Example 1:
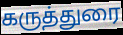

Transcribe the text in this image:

கருத்துரை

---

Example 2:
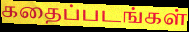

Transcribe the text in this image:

கதைப்படங்கள்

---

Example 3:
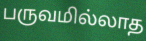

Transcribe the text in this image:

பருவமில்லாத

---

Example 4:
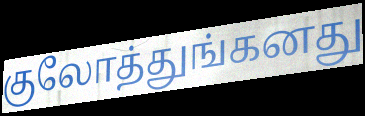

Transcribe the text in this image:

குலோத்துங்கனது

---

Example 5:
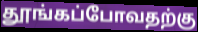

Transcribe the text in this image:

தூங்கப்போவதற்கு